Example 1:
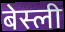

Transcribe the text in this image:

बेस्ली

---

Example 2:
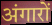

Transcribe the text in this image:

अंगारों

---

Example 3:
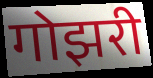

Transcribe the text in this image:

गोझरी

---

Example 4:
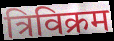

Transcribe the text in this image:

त्रिविक्रम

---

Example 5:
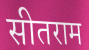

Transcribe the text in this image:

सीतराम